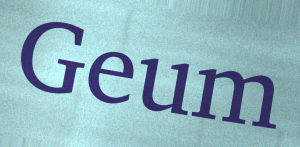
Geum